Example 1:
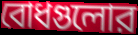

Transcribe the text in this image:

বোধগুলোর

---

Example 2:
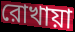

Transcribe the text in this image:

রোখায়া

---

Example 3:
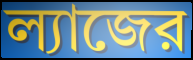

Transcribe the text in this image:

ল্যাজের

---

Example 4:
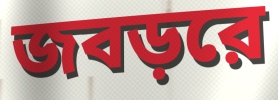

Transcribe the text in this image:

জবড়রে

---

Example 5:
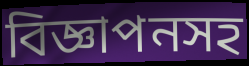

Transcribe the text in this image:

বিজ্ঞাপনসহ